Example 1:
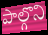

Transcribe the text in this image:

పాల్గొని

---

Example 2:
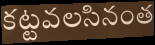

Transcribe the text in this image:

కట్టవలసినంత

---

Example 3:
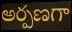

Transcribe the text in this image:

అర్పణగా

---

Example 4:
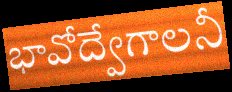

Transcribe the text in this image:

భావోద్వేగాలనీ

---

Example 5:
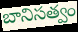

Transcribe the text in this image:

బానిసత్వం